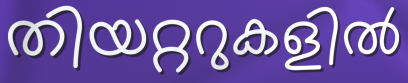
തിയറ്ററുകളിൽ